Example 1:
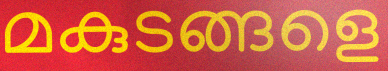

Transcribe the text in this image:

മകുടങ്ങളെ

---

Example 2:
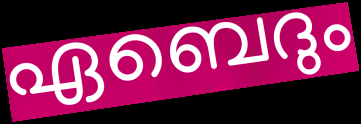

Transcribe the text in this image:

ഏബെദും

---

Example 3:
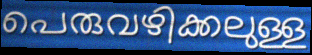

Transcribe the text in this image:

പെരുവഴിക്കലുള്ള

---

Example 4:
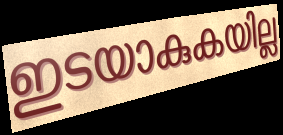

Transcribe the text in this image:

ഇടയാകുകയില്ല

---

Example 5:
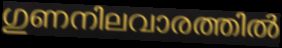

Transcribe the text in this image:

ഗുണനിലവാരത്തിൽ